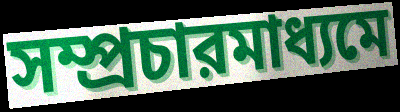
সম্প্রচারমাধ্যমে